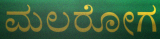
ಮಲರೋಗ